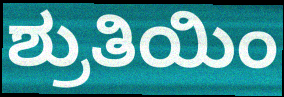
ಶ್ರುತಿಯಿಂ